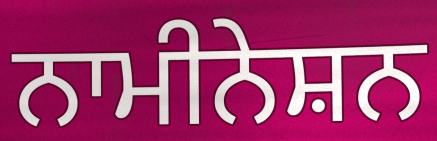
ਨਾਮੀਨੇਸ਼ਨ